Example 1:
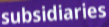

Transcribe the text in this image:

subsidiaries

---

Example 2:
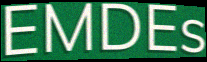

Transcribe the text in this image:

EMDEs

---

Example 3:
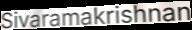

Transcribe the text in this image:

Sivaramakrishnan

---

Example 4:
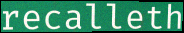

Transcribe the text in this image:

recalleth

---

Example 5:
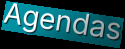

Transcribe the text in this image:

Agendas